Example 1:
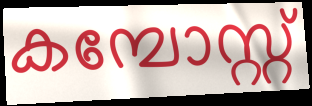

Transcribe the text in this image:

കമ്പോസ്റ്റ്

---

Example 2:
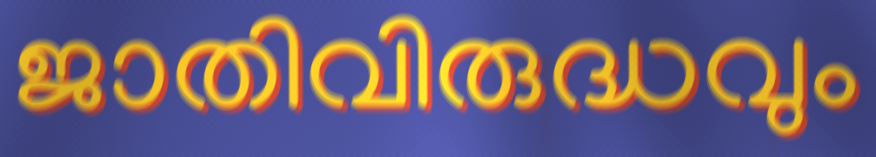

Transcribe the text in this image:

ജാതിവിരുദ്ധവും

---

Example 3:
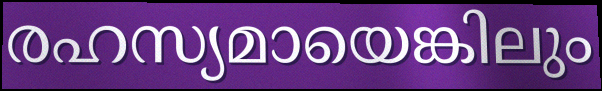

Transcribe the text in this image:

രഹസ്യമായെങ്കിലും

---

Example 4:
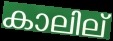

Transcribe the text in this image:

കാലില്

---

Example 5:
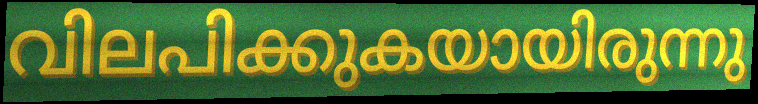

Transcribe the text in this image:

വിലപിക്കുകയായിരുന്നു